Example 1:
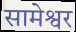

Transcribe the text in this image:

सामेश्वर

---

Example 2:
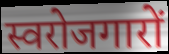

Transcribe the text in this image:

स्वरोजगारों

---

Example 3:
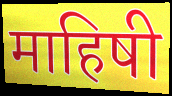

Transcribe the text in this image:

माहिषी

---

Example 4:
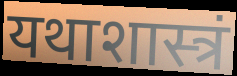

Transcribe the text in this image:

यथाशास्त्रं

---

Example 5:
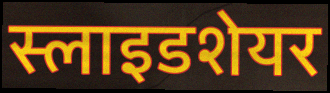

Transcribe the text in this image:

स्लाइडशेयर